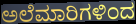
ಅಲೆಮಾರಿಗಳಿಂದ